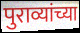
पुराव्यांच्या